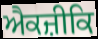
ਐਕਜ਼ੀਕਿ